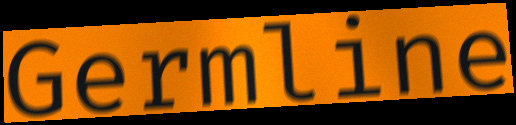
Germline